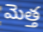
మెత్త